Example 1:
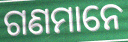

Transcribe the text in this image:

ଗଣମାନେ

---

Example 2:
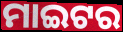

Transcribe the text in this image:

ମାଇଟର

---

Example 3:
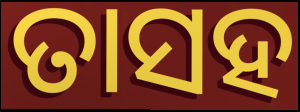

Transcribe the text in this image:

ତାସହ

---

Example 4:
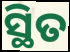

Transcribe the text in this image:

ସ୍ଥିତ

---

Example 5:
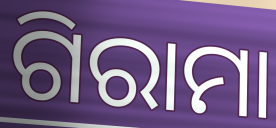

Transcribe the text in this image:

ଗିରାମା